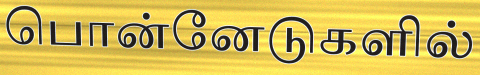
பொன்னேடுகளில்